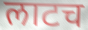
लाटच